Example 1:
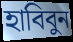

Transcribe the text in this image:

হাবিবুন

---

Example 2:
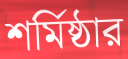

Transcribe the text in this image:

শর্মিষ্ঠার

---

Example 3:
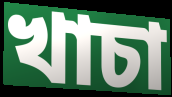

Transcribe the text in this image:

খাচা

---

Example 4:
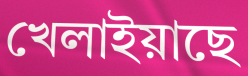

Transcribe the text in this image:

খেলাইয়াছে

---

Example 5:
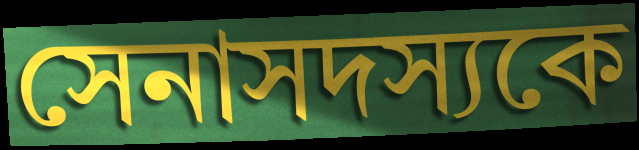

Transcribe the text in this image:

সেনাসদস্যকে